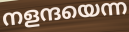
നളന്ദയെന്ന